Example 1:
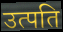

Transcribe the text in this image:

उत्पति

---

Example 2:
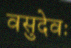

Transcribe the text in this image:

वसुदेवः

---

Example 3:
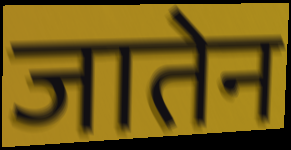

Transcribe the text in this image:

जातेन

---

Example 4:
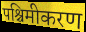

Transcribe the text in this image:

पश्चिमीकरण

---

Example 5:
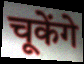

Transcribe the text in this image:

चूकेंगे